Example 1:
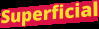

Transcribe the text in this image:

Superficial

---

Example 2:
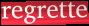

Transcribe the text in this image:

regrette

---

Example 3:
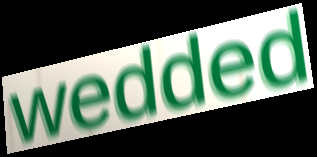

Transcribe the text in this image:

wedded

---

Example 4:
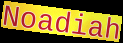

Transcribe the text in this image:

Noadiah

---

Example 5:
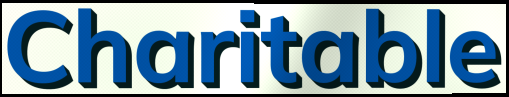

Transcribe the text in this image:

Charitable